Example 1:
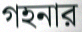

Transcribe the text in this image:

গহনার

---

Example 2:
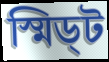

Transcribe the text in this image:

স্মিড্ট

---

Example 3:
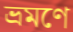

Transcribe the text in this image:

ভ্রমণে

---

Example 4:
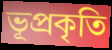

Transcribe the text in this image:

ভূপ্রকৃতি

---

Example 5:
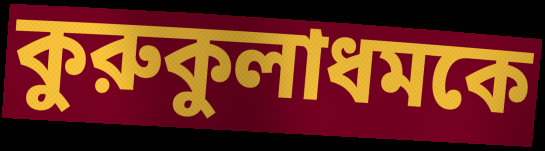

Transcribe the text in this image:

কুরুকুলাধমকে